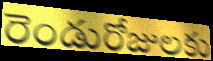
రెండురోజులకు